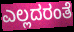
ಎಲ್ಲದರಂತೆ